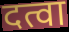
दत्वा